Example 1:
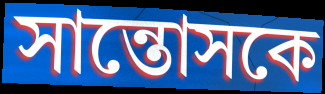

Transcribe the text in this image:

সান্তোসকে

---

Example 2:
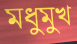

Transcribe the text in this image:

মধুমুখ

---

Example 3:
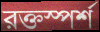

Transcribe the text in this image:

রক্তস্পর্শ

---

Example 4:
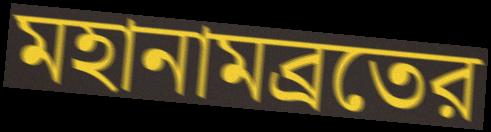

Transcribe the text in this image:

মহানামব্রতের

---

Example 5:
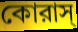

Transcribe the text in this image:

কোরাস্